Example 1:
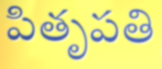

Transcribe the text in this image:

పితృపతి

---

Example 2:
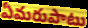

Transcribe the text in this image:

ఏమరుపాటు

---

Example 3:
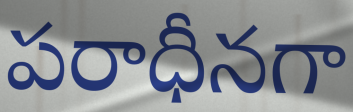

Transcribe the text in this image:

పరాధీనగా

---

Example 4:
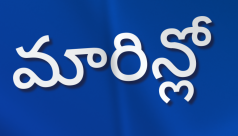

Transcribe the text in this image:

మారిన్లో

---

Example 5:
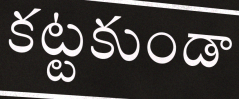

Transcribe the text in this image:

కట్టకుండా